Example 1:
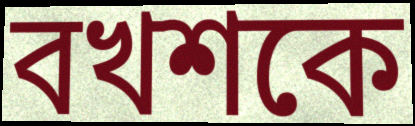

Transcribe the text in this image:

বখশকে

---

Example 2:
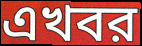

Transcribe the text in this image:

এখবর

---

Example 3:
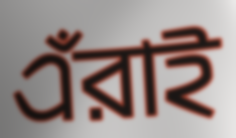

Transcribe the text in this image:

এঁরাই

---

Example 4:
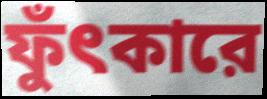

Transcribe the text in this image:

ফুঁৎকারে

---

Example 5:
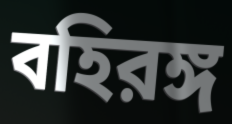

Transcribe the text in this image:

বহিরঙ্গ